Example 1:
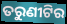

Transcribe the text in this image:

ତରୁଣୀଟିର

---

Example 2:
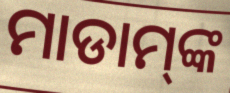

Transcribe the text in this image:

ମାଡାମ୍‌ଙ୍କ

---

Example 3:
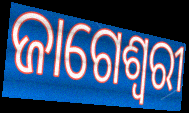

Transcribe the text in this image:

ଜାଗେଶ୍ୱରୀ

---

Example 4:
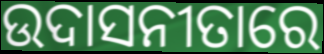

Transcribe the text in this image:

ଉଦାସନୀତାରେ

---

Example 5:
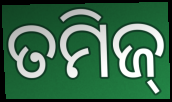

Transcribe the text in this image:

ତମିଜ୍